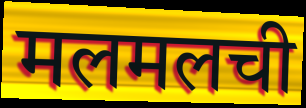
मलमलची